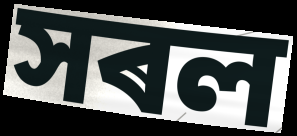
সৰল